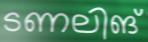
ടണലിങ്